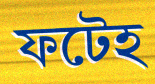
ফটেহ